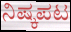
ನಿಷ್ಕಪಟ